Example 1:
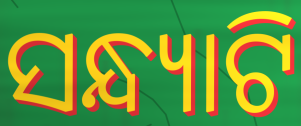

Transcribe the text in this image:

ସନ୍ଧ୍ୟାଟି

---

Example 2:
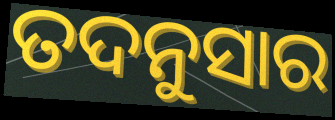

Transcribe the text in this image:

ତଦନୁସାର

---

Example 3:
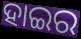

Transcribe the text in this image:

ହାଇର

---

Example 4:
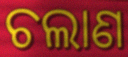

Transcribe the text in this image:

ଚଲାଣ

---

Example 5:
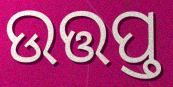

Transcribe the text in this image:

ଉତ୍ତପ୍ତ